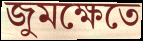
জুমক্ষেতে